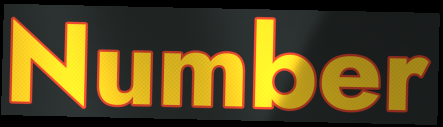
Number